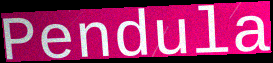
Pendula